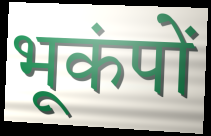
भूकंपों